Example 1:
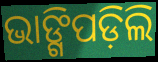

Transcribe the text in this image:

ଭାଙ୍ଗିପଡ଼ିଲି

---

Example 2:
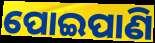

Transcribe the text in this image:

ପୋଇପାଣି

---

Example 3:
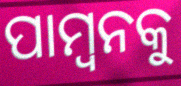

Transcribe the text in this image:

ପାମ୍ବନକୁ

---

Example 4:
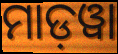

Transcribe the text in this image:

ମାଡ଼ୱା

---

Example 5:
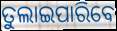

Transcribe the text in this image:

ତୁଲାଇପାରିବେ